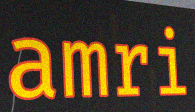
amri